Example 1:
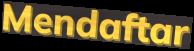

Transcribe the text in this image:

Mendaftar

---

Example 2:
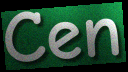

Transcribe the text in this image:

Cen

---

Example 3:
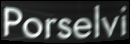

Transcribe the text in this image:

Porselvi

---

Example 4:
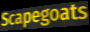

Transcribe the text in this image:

Scapegoats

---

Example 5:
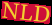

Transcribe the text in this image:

NLD